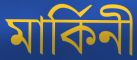
মার্কিনী